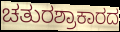
ಚತುರಶ್ರಾಕಾರದ